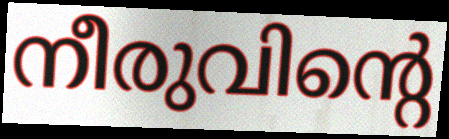
നീരുവിന്റെ